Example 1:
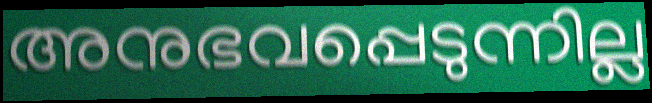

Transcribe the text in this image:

അനുഭവപ്പെടുന്നില്ല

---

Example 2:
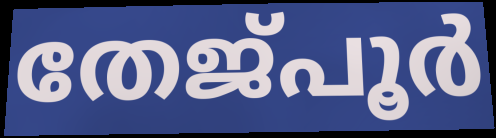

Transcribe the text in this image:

തേജ്പൂർ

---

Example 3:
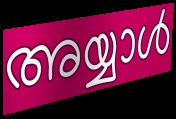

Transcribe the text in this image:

അയ്യാൾ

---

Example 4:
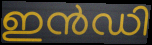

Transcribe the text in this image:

ഇൻഡി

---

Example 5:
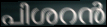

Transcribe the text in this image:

പിശറൻ